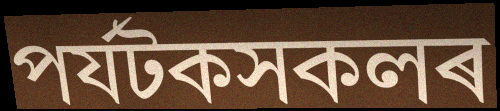
পৰ্যটকসকলৰ